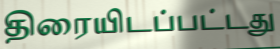
திரையிடப்பட்டது